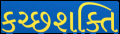
કચ્છશક્તિ